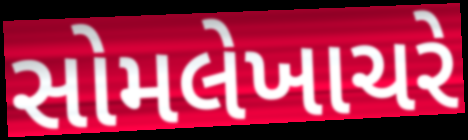
સોમલેખાચરે